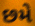
છમે